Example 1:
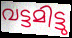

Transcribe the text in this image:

വട്ടമിട്ടു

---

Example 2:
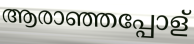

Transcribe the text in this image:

ആരാഞ്ഞപ്പോള്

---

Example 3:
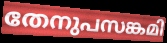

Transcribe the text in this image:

തേനുപസങ്കമി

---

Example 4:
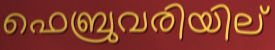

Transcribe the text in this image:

ഫെബ്രുവരിയില്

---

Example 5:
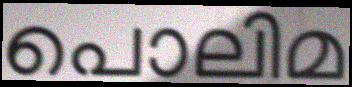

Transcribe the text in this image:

പൊലിമ